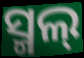
ସ୍ମଲ୍